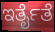
ಇರ್ತೈತೆ